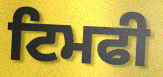
ਟਿਮਫੀ